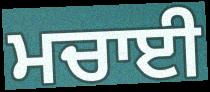
ਮਚਾਈ